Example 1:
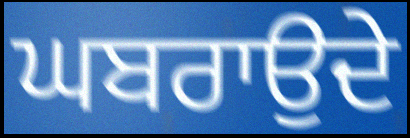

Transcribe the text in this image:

ਘਬਰਾਉਦੇ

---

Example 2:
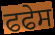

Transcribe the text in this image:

ਫਫੇਸ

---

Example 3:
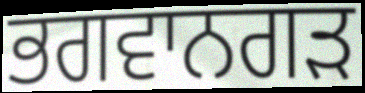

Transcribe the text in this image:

ਭਗਵਾਨਗੜ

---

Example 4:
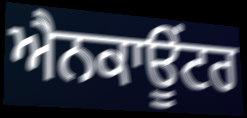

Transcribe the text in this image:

ਐਨਕਾਊਂਟਰ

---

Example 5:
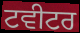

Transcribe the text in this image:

ਟਵੀਟਰ